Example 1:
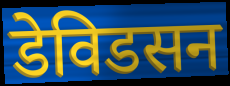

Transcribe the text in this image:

डेविडसन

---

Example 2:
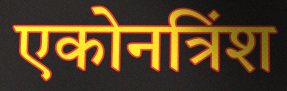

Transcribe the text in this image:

एकोनत्रिंश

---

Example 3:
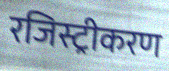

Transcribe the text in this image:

रजिस्ट्रीकरण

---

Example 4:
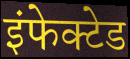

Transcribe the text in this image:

इंफेक्टेड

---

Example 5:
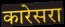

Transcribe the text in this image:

कारेसरा